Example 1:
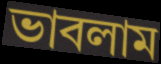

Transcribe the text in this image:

ভাবলাম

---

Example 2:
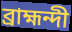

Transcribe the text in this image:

ব্রাহ্মন্দী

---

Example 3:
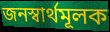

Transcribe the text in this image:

জনস্বার্থমূলক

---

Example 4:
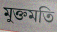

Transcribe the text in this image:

মুক্তমতি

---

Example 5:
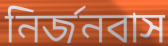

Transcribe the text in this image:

নির্জনবাস